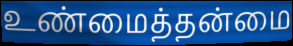
உண்மைத்தன்மை